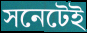
সনেটেই